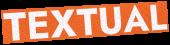
TEXTUAL